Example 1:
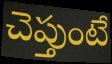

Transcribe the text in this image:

చెప్తుంటే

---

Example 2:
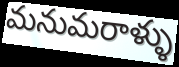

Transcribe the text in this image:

మనుమరాళ్ళు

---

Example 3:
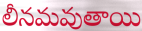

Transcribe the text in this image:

లీనమవుతాయి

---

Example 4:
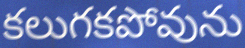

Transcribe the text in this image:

కలుగకపోవును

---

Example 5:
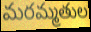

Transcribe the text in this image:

మరమ్మతుల